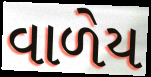
વાળેય